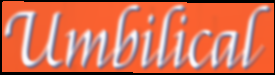
Umbilical